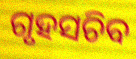
ଗୃହସଚିବ